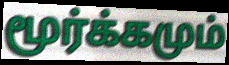
மூர்க்கமும்